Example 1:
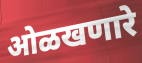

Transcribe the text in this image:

ओळखणारे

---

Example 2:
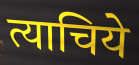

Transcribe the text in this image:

त्याचिये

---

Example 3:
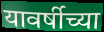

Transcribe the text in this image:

यावर्षीच्या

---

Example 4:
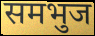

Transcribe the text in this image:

समभुज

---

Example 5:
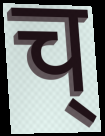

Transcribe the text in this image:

च्